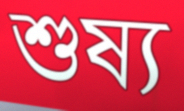
শুষ্য